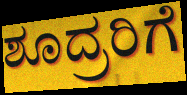
ಶೂದ್ರರಿಗೆ